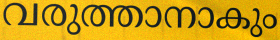
വരുത്താനാകും